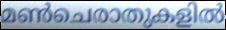
മൺചെരാതുകളിൽ